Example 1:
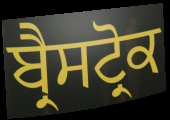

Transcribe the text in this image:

ਬ੍ਰੈਸਟ੍ਰੋਕ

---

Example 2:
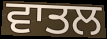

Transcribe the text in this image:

ਵਾਤਲ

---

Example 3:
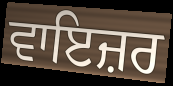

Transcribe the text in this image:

ਵਾਇਜ਼ਰ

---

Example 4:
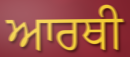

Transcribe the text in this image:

ਆਰਥੀ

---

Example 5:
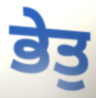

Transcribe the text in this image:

ਭੇਤੁ